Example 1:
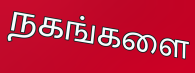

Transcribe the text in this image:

நகங்களை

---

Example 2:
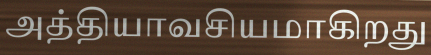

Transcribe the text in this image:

அத்தியாவசியமாகிறது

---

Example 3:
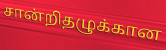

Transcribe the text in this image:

சான்றிதழுக்கான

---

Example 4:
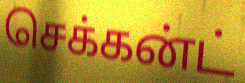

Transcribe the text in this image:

செக்கன்ட்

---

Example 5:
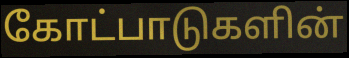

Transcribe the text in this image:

கோட்பாடுகளின்